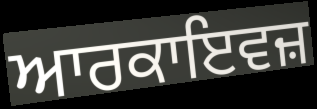
ਆਰਕਾਇਵਜ਼